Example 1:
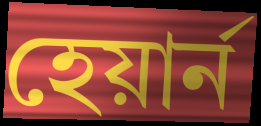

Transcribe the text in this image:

হেয়ার্ন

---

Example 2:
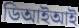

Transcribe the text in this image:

ডিআইআই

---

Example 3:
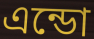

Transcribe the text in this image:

এন্ডো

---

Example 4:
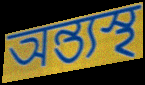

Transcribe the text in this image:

অন্ত্যস্থ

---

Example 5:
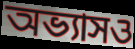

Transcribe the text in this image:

অভ্যাসও